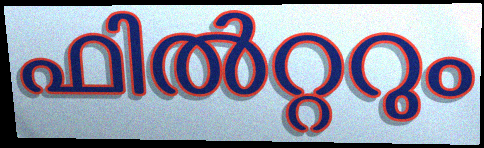
ഫിൽറ്ററും